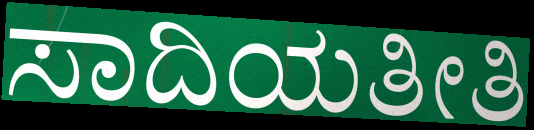
ಸಾದಿಯತೀತಿ